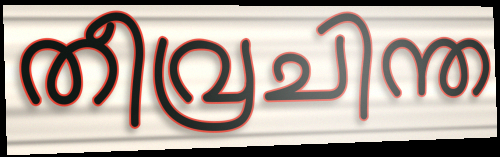
തീവ്രചിന്ത